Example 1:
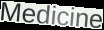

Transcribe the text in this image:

Medicine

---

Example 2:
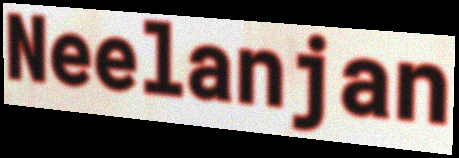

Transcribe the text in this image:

Neelanjan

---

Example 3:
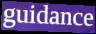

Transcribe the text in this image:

guidance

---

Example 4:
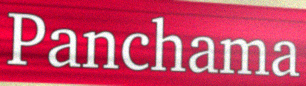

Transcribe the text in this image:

Panchama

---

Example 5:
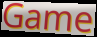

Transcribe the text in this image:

Game